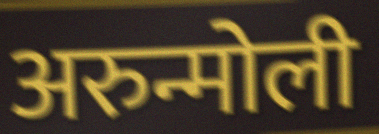
अरुन्मोली